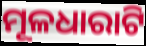
ମୂଳଧାରାଟି